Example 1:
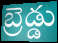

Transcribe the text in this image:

బ్రెడ్డు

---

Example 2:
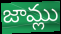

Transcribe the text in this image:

జామ్లు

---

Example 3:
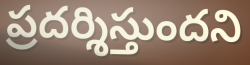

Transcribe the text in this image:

ప్రదర్శిస్తుందని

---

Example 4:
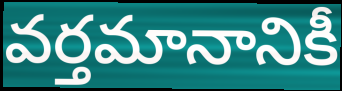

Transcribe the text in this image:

వర్తమానానికీ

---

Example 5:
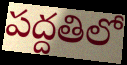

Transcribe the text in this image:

పద్దతిలో